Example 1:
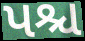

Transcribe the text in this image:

પશ્ચ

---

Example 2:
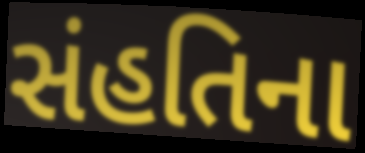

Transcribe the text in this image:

સંહતિના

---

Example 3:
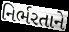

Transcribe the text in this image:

નિર્ભરતાને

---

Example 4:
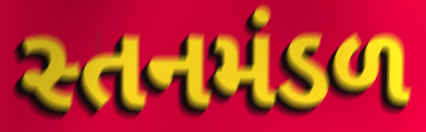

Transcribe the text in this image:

સ્તનમંડળ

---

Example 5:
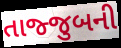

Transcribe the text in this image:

તાજ્જુબની